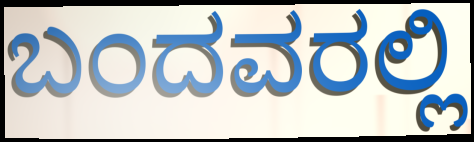
ಬಂದವರಲ್ಲಿ